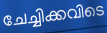
ചേച്ചിക്കവിടെ